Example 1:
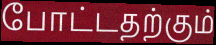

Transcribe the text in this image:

போட்டதற்கும்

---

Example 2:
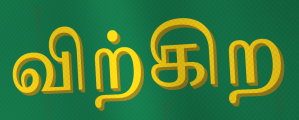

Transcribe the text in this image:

விற்கிற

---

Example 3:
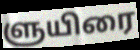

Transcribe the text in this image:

ளுயிரை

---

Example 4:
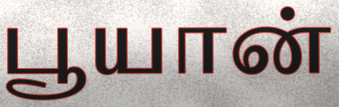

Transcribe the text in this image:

பூயான்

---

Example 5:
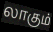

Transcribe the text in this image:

லாகும்